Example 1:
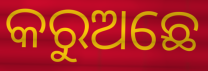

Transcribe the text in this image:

କରୁଅଛେ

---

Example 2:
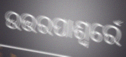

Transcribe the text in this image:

ଉତ୍ତରପାଶ୍ୱର୍ରେ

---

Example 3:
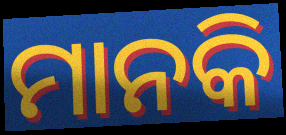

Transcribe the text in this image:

ମାନକି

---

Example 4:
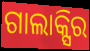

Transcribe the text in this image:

ଗାଲାକ୍ସିର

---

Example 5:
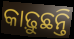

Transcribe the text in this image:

କାଢ଼ୁଛନ୍ତି